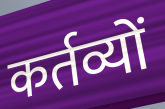
कर्तव्यों